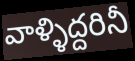
వాళ్ళిద్దరినీ